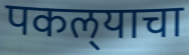
पकल्याचा